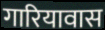
गारियावास